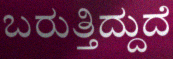
ಬರುತ್ತಿದ್ದುದೆ